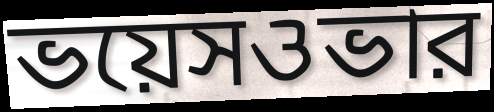
ভয়েসওভার